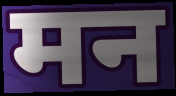
मन